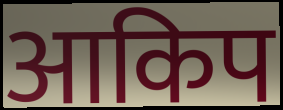
आकिप